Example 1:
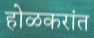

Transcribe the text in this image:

होळकरांत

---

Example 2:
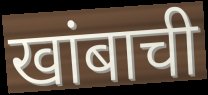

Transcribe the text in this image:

खांबाची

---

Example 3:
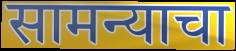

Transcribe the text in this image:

सामन्याचा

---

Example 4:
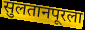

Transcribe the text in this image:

सुलतानपूरला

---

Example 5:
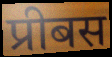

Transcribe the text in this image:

प्रीबस